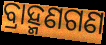
ବ୍ରାହ୍ମଣଗଣ